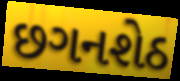
છગનશેઠ